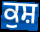
ਕੁਸ਼